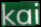
kai